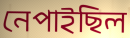
নেপাইছিল